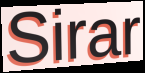
Sirar